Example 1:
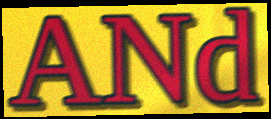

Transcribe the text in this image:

ANd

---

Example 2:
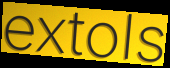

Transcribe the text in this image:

extols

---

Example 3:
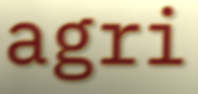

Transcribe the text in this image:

agri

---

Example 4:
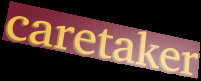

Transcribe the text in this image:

caretaker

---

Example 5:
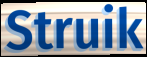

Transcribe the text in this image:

Struik